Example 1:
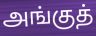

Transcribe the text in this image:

அங்குத்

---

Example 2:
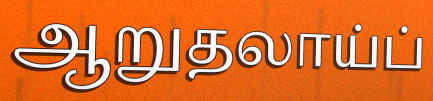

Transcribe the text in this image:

ஆறுதலாய்ப்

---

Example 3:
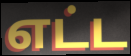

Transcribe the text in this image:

எட்ட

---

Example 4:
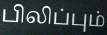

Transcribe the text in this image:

பிலிப்பும்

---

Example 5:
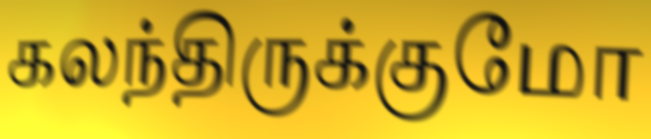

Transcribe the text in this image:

கலந்திருக்குமோ